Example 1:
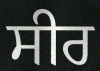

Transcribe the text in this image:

ਸੀਰ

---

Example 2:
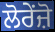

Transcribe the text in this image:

ਲੋਰੇਂਜ਼ੋ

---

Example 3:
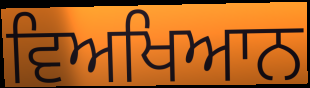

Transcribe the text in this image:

ਵਿਅਖਿਆਨ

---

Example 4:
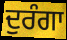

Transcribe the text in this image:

ਦੁਰੰਗਾ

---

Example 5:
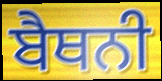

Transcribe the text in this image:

ਬੈਥਨੀ